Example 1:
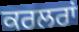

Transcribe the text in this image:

ਕਰਲਰਾਂ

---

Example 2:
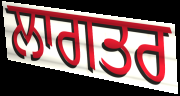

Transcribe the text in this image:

ਲਾਗਤਰ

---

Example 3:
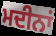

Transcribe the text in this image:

ਮਦੀਨਾਂ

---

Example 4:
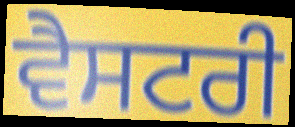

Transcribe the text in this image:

ਵੈਸਟਰੀ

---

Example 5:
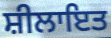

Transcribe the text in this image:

ਸ਼ੀਲਾਇਤ